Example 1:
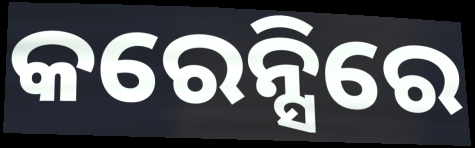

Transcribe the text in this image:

କରେନ୍ସିରେ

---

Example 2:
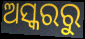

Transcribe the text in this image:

ଅସ୍କରରୁ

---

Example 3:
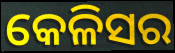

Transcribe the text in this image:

କେଳିସର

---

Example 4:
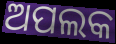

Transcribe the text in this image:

ଅପଲକ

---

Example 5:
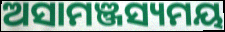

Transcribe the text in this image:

ଅସାମଞ୍ଜସ୍ୟମୟ